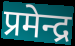
प्रमेन्द्र